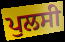
ਪੁਲਸੀ